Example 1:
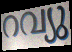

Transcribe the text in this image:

റവ്യു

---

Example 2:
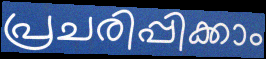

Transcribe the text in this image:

പ്രചരിപ്പിക്കാം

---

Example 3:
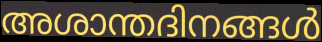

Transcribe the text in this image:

അശാന്തദിനങ്ങൾ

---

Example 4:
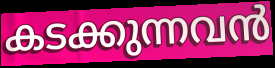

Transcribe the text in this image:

കടക്കുന്നവൻ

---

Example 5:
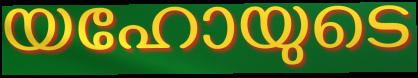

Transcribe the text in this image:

യഹോയുടെ